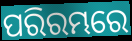
ପରିରମ୍ଭରେ